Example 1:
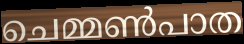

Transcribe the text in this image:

ചെമ്മൺപാത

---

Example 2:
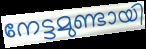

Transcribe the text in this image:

നേട്ടമുണ്ടായി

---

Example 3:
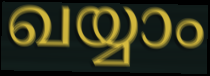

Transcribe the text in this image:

ഖയ്യാം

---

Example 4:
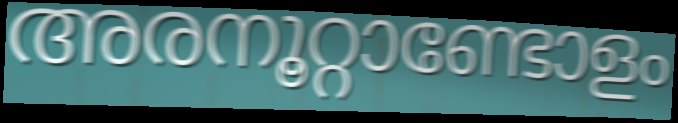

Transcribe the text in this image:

അരനൂറ്റാണ്ടോളം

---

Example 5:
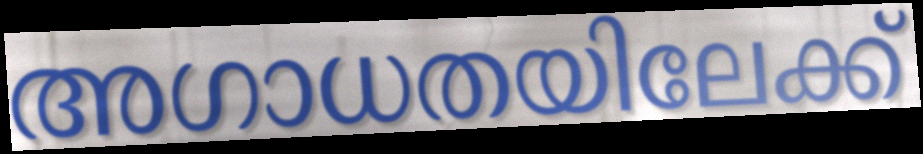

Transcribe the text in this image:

അഗാധതയിലേക്ക്